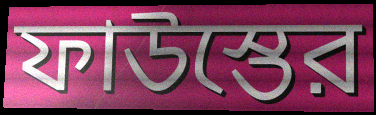
ফাউস্তের